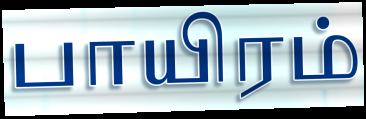
பாயிரம்